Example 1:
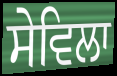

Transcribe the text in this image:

ਸੇਵਿਲਾ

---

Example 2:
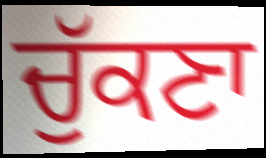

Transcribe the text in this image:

ਚੁੱਕਣਾ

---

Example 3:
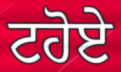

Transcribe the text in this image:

ਟਹੋਏ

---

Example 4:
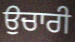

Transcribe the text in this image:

ਉਚਾਰੀ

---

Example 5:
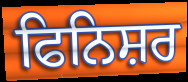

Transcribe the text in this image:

ਫਿਨਿਸ਼ਰ